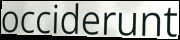
occiderunt